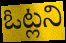
ఓట్లని